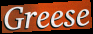
Greese